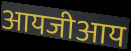
आयजीआय